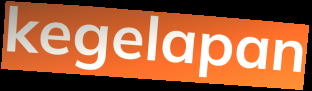
kegelapan